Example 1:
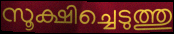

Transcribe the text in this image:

സൂക്ഷിച്ചെടുത്തു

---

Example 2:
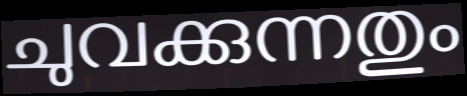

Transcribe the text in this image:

ചുവക്കുന്നതും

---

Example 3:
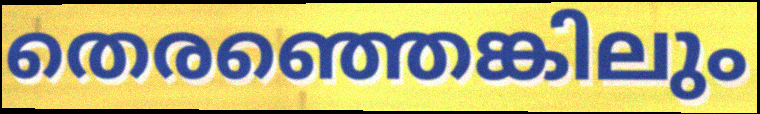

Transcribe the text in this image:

തെരഞ്ഞെങ്കിലും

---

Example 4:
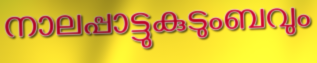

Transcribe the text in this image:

നാലപ്പാട്ടുകുടുംബവും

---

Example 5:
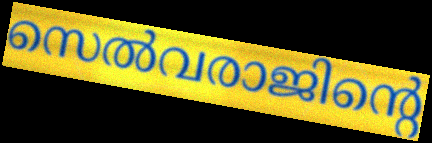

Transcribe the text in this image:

സെൽവരാജിന്റെ